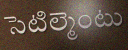
సెటిల్మెంటు